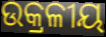
ଉକ୍ରଳୀୟ